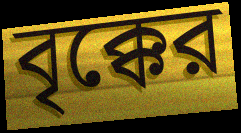
বৃক্কের